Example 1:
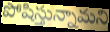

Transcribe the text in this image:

పోషిస్తున్నామని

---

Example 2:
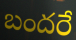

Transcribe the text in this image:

బందరే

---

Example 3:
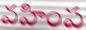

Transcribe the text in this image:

వహింప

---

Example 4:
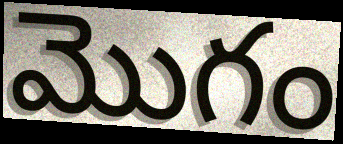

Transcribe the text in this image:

మొగం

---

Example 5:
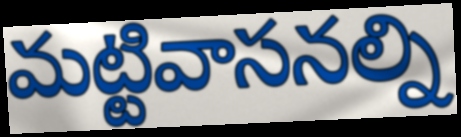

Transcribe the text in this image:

మట్టివాసనల్ని